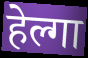
हेल्गा